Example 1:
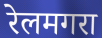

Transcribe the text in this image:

रेलमगरा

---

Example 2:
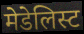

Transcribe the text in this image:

मेडेलिस्ट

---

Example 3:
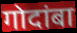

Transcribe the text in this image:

गोदांबा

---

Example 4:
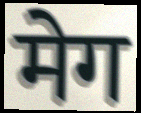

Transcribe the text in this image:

मेग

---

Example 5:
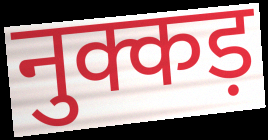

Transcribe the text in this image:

नुक्कड़